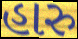
હારુ